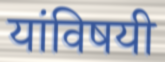
यांविषयी